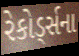
રેકોર્ડ્સના